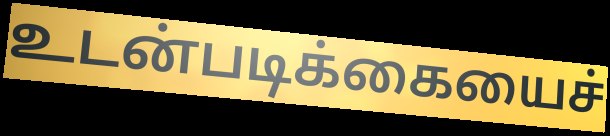
உடன்படிக்கையைச்